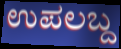
ಉಪಲಬ್ದ